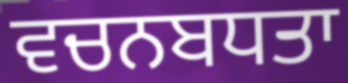
ਵਚਨਬਧਤਾ